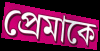
প্রেমাকে